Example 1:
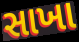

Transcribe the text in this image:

સાખા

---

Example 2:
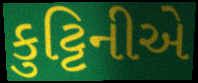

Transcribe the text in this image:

કુટ્ટિનીએ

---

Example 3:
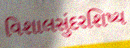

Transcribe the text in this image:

વિશાલસુંદરશિષ્ય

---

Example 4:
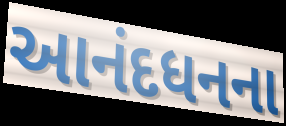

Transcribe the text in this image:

આનંદધનના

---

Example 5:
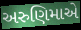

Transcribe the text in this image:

અરુણિમાએ